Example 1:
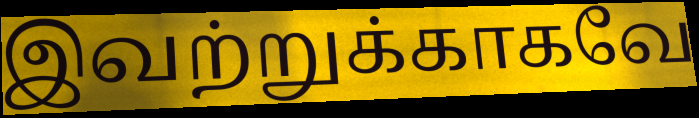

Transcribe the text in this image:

இவற்றுக்காகவே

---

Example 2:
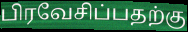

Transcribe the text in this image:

பிரவேசிப்பதற்கு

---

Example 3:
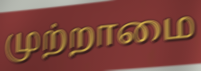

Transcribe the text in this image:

முற்றாமை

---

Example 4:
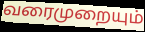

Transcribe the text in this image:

வரைமுறையும்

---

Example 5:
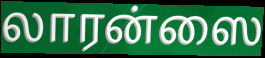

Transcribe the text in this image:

லாரன்ஸை